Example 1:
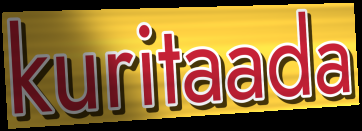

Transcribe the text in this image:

kuritaada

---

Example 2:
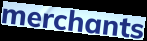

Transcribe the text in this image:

merchants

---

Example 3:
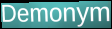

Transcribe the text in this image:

Demonym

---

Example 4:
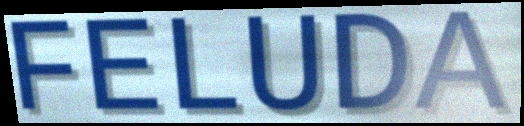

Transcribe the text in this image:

FELUDA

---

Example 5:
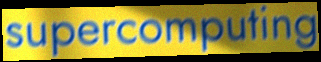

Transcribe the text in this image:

supercomputing